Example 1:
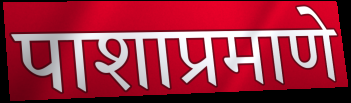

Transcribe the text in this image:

पाशाप्रमाणे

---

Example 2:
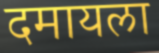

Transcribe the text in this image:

दमायला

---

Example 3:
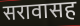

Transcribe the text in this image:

सरावासह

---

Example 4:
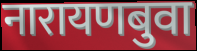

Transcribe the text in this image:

नारायणबुवा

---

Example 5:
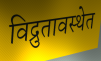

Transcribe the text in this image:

विद्रुतावस्थेत